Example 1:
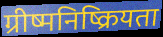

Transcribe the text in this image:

ग्रीष्मनिष्क्रियता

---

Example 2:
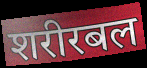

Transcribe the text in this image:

शरीरबल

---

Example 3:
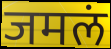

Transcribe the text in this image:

जमलं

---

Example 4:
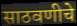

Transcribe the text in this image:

साठवणीचे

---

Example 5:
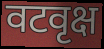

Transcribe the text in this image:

वटवृक्ष